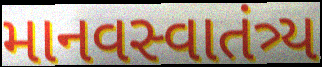
માનવસ્વાતંત્ર્ય